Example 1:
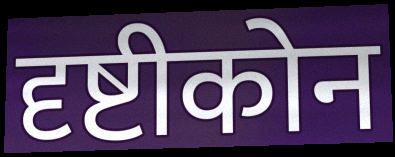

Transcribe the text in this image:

दृष्टीकोन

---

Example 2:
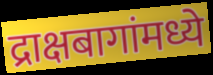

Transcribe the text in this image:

द्राक्षबागांमध्ये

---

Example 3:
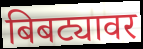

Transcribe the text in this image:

बिबट्यावर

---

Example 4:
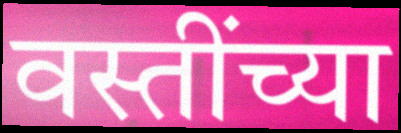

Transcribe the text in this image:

वस्तींच्या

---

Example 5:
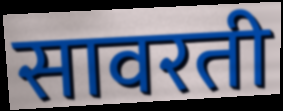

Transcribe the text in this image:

सावरती